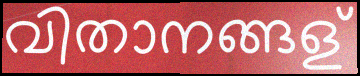
വിതാനങ്ങള്